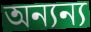
অন্যন্য